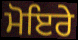
ਮੋਇਰੇ